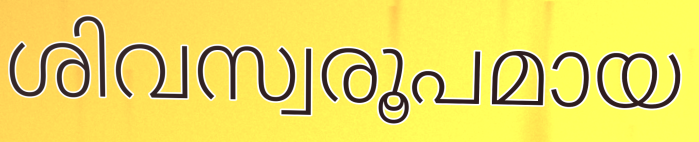
ശിവസ്വരൂപമായ